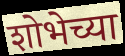
शोभेच्या